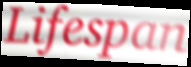
Lifespan